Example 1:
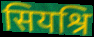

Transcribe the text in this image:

सियश्रि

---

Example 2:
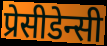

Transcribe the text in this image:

प्रेसीडेन्सी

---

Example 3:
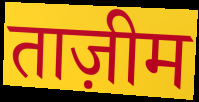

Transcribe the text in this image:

ताज़ीम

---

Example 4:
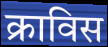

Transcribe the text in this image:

क्राविस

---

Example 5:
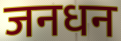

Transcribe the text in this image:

जनधन